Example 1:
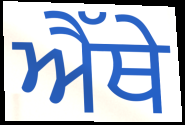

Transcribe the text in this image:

ਐੱਥੇ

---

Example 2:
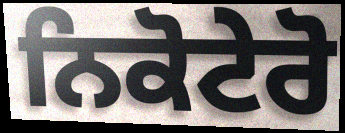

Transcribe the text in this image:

ਨਿਕੋਟੇਰੋ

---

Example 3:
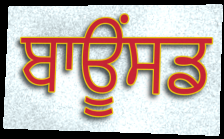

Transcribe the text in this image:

ਬਾਊਂਸਡ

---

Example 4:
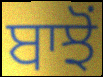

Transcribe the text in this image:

ਬਾਝੋਂ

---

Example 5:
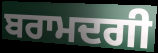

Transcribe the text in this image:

ਬਰਾਮਦਗੀ